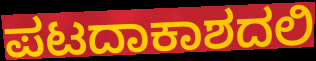
ಪಟದಾಕಾಶದಲಿ